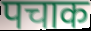
पचाक